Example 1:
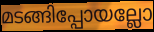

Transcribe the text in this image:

മടങ്ങിപ്പോയല്ലോ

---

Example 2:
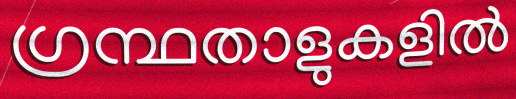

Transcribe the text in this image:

ഗ്രന്ഥതാളുകളിൽ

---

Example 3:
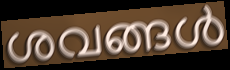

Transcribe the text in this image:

ശവങ്ങൾ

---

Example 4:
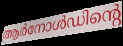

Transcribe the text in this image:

ആർനോൾഡിന്റെ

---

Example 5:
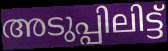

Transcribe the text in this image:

അടുപ്പിലിട്ട്